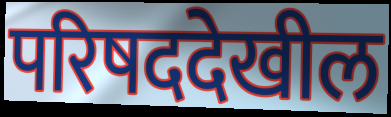
परिषददेखील